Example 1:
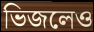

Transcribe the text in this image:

ভিজলেও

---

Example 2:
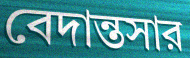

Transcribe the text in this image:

বেদান্তসার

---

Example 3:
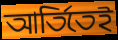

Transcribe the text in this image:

আর্তিতেই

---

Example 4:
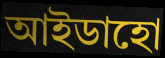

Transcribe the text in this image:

আইডাহো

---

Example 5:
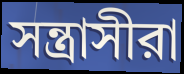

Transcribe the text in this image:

সন্ত্রাসীরা